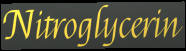
Nitroglycerin